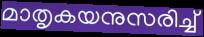
മാതൃകയനുസരിച്ച്